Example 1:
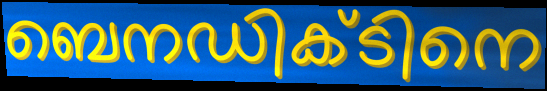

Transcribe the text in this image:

ബെനഡിക്ടിനെ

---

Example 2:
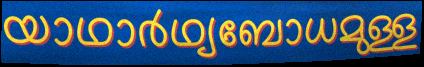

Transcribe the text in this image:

യാഥാർഥ്യബോധമുള്ള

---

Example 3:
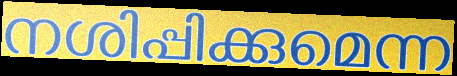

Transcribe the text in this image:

നശിപ്പിക്കുമെന്ന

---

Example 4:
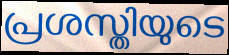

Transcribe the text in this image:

പ്രശസ്തിയുടെ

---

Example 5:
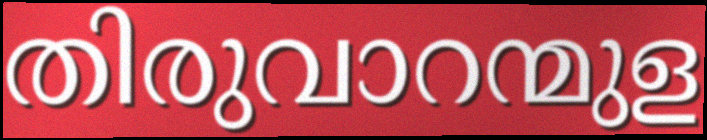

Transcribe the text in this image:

തിരുവാറന്മുള